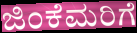
ಜಿಂಕೆಮರಿಗೆ